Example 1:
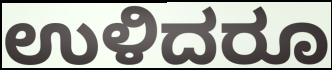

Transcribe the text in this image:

ಉಳಿದರೂ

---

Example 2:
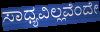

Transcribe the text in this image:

ಸಾಧ್ಯವಿಲ್ಲವೆಂದೇ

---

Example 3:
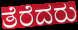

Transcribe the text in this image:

ತೆರೆದರು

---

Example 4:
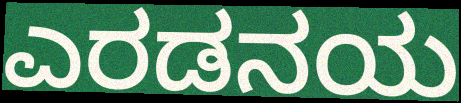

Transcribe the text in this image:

ಎರಡನಯ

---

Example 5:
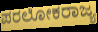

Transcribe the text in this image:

ಪರಲೋಕರಾಜ್ಯ